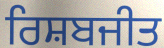
ਰਿਸ਼ਬਜੀਤ